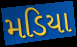
મડિયા